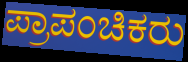
ಪ್ರಾಪಂಚಿಕರು